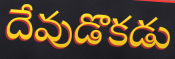
దేవుడొకడు